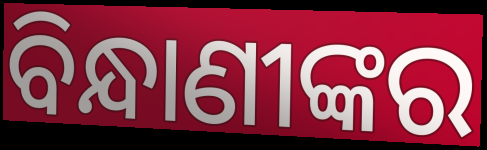
ବିନ୍ଧାଣୀଙ୍କର